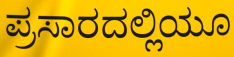
ಪ್ರಸಾರದಲ್ಲಿಯೂ